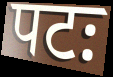
पटः